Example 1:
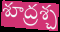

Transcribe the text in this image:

శూద్రశ్చ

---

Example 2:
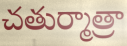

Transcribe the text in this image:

చతుర్మాత్రా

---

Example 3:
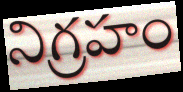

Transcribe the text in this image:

నిగ్రహం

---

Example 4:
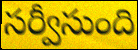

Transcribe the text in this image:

సర్వీసుంది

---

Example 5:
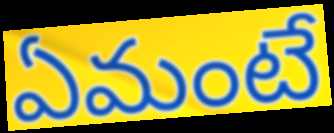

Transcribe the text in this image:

ఏమంటే